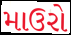
માઉરો